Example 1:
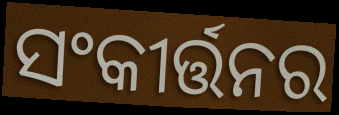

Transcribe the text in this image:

ସଂକୀର୍ତ୍ତନର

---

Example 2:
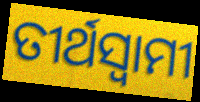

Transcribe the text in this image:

ତୀର୍ଥସ୍ୱାମୀ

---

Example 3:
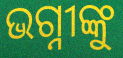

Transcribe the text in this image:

ଭଗ୍ନୀଙ୍କୁ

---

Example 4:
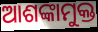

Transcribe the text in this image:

ଆଶଙ୍କାମୁକ୍ତ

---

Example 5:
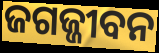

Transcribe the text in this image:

ଜଗଜ୍ଜୀବନ